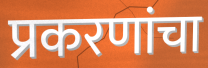
प्रकरणांचा